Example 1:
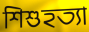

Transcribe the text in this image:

শিশুহত্যা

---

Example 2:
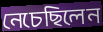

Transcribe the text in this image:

নেচেছিলেন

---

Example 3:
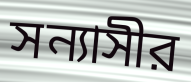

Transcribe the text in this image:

সন্যাসীর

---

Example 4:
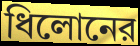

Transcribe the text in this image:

ধিলোনের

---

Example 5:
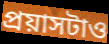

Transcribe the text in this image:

প্রয়াসটাও